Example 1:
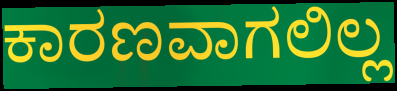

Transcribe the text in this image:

ಕಾರಣವಾಗಲಿಲ್ಲ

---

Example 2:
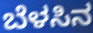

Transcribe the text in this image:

ಬೆಳಸಿನ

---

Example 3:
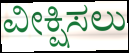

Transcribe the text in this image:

ವೀಕ್ಷಿಸಲು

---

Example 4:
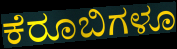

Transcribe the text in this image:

ಕೆರೂಬಿಗಳೂ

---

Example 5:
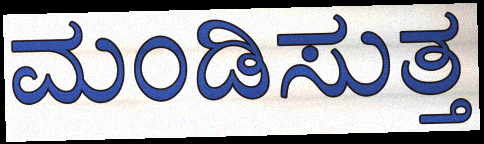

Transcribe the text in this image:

ಮಂಡಿಸುತ್ತ